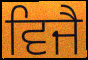
ਵਿਜੈ